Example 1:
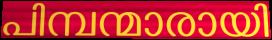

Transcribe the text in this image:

പിമ്പന്മാരായി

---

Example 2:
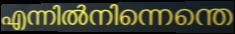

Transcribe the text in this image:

എന്നിൽനിന്നെന്തെ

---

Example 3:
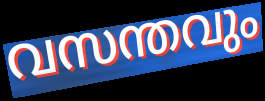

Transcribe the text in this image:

വസന്തവും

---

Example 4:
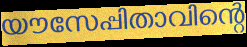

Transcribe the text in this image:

യൗസേപ്പിതാവിന്റെ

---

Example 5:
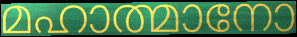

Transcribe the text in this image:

മഹാത്മാനോ